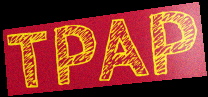
TPAP